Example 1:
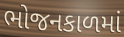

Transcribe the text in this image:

ભોજનકાળમાં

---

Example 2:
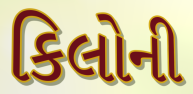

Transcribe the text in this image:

કિલોની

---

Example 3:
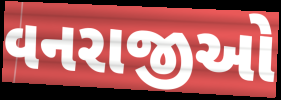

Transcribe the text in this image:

વનરાજીઓ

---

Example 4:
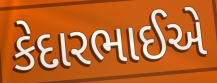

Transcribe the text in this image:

કેદારભાઈએ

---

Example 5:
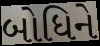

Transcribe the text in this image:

બોધિને